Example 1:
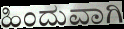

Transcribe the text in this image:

ಹಿಂದುವಾಗಿ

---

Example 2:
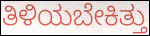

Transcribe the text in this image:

ತಿಳಿಯಬೇಕಿತ್ತು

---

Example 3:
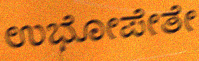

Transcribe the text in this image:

ಉಭೋಪೇತೇ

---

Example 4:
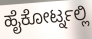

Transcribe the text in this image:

ಹೈಕೋರ್ಟ್ನಲ್ಲಿ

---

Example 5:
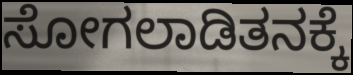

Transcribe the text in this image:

ಸೋಗಲಾಡಿತನಕ್ಕೆ